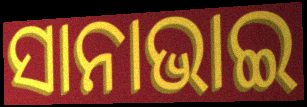
ସାନାଭାଇ